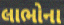
લાભોના